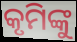
କୃମିଙ୍କୁ